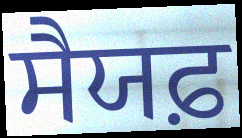
ਸੈਯਫ਼